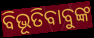
ବିଭୂତିବାବୁଙ୍କ